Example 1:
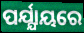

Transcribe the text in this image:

ପର୍ଯ୍ଯାୟରେ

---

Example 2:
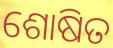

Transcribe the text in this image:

ଶୋଷିତ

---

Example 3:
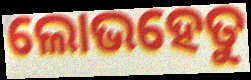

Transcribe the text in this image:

ଲୋଭହେତୁ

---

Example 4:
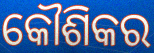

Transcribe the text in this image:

କୌଶିକର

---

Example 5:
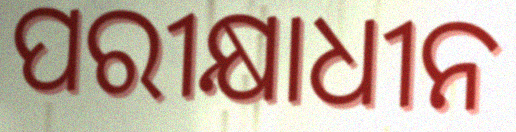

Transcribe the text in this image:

ପରୀକ୍ଷାଧୀନ